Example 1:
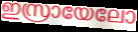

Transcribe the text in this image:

ഇസ്രായേലോ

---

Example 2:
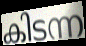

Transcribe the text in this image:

കിടന്ന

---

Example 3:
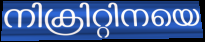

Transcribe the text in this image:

നിക്രിറ്റിനയെ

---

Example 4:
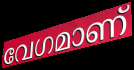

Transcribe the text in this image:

വേഗമാണ്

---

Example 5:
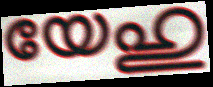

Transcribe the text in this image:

യേഹു